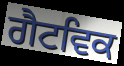
ਗੈਟਵਿਕ